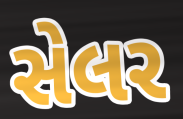
સેલર